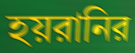
হয়রানির